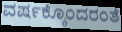
ವರ್ಷಕ್ಕೊಂದರಂತೆ